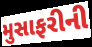
મુસાફરીની